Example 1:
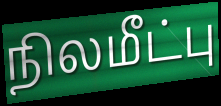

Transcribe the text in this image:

நிலமீட்பு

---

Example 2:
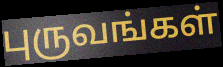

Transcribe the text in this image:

புருவங்கள்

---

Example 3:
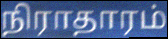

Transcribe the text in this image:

நிராதாரம்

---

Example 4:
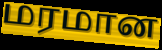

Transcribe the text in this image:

மரமான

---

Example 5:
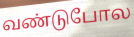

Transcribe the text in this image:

வண்டுபோல